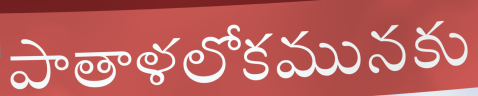
పాతాళలోకమునకు